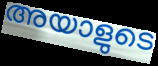
അയാളുടെ